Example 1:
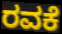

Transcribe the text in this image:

ರವಕೆ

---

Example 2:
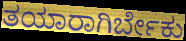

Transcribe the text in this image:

ತಯಾರಾಗಿರ್ಬೇಕು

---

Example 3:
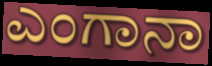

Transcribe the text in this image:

ಎಂಗಾನಾ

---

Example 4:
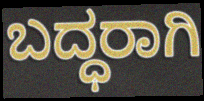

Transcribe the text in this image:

ಬದ್ಧರಾಗಿ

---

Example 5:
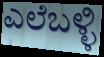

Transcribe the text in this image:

ಎಲೆಬಳ್ಳಿ